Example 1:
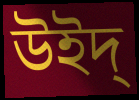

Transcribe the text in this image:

উইদ্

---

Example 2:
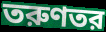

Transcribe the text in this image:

তরুণতর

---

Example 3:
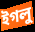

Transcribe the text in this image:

ইগলু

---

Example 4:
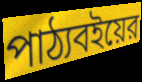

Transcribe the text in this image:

পাঠ্যবইয়ের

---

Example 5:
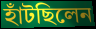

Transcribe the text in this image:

হাঁটছিলেন